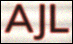
AJL